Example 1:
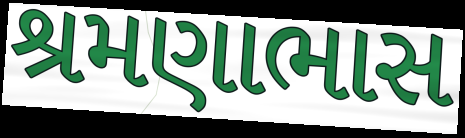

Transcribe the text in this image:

શ્રમણાભાસ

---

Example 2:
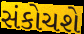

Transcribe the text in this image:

સંકોચશે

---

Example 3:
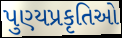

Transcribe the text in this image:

પુણ્યપ્રકૃતિઓ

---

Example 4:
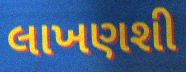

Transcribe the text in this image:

લાખણશી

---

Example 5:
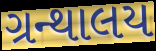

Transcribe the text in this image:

ગ્રન્થાલય